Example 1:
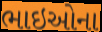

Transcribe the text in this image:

ભાઇઓના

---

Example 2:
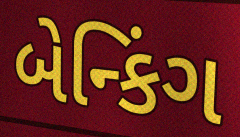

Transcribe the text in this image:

બેન્કિંગ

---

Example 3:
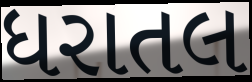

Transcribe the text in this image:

ધરાતલ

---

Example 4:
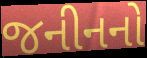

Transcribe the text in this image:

જનીનનો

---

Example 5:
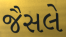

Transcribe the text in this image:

જૈસલે